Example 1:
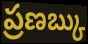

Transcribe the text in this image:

ప్రణబ్కు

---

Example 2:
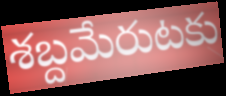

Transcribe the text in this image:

శబ్దమేరుటకు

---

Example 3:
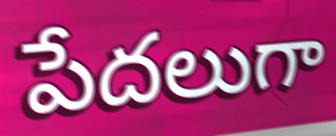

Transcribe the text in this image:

పేదలుగా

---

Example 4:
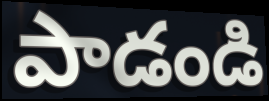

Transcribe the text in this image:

పాడండి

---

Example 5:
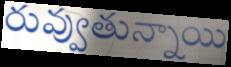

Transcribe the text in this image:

రువ్వుతున్నాయి